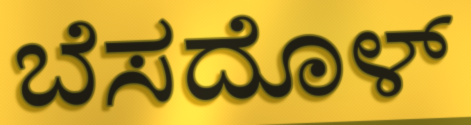
ಬೆಸದೊಳ್